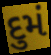
દુમં